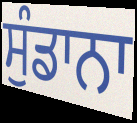
ਸੁੰਡਾਨਾ